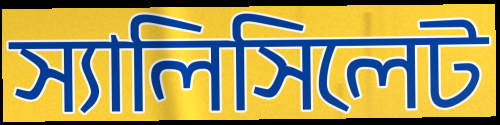
স্যালিসিলেট